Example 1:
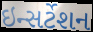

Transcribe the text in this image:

ઇન્સર્ટેશન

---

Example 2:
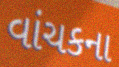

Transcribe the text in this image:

વાંચકના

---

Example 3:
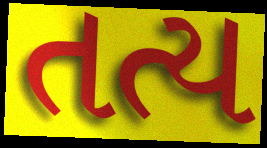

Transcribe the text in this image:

તત્ય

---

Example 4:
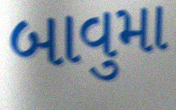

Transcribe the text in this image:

બાવુમા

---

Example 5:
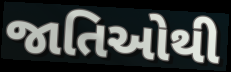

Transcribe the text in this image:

જાતિઓથી